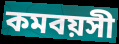
কমবয়সী